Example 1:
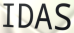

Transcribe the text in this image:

IDAS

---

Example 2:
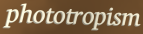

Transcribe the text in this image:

phototropism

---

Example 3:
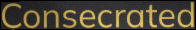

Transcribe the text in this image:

Consecrated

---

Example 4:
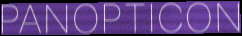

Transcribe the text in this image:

PANOPTICON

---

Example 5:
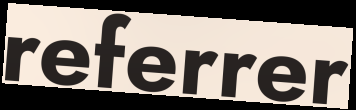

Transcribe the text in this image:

referrer